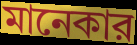
মানেকার